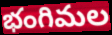
భంగిమల